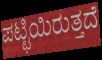
ಪಟ್ಟಿಯಿರುತ್ತದೆ